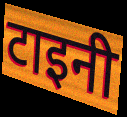
टाइनी